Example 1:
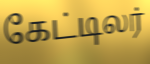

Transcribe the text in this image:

கேட்டிலர்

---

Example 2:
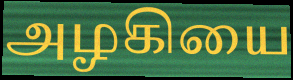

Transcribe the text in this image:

அழகியை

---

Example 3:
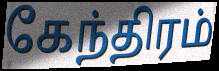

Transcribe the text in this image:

கேந்திரம்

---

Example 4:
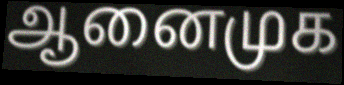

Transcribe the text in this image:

ஆனைமுக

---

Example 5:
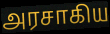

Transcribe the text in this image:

அரசாகிய